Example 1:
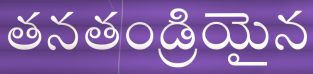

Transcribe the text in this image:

తనతండ్రియైన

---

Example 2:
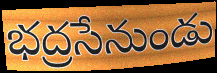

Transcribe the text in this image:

భద్రసేనుండు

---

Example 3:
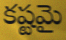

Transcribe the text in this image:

కష్టమై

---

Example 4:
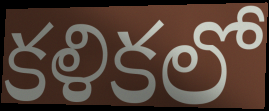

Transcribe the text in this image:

కళికలో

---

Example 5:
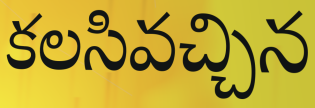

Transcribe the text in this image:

కలసివచ్చిన